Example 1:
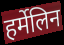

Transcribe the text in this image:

हर्मेलिन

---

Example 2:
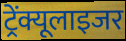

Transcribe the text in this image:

ट्रेंक्यूलाइजर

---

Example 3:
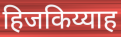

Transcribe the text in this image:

हिजकिय्याह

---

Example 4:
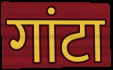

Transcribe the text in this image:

गांटा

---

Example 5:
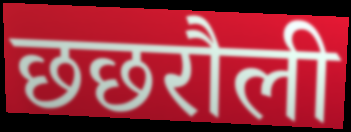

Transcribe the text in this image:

छछरौली